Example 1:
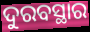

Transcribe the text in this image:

ଦୁରବସ୍ଥାର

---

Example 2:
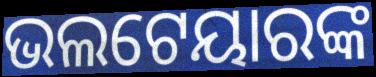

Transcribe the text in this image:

ଭଲଟେୟାରଙ୍କ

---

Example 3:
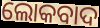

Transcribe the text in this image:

ଲୋକବାଦ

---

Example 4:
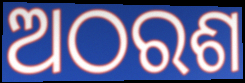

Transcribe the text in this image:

ଅଠରଶ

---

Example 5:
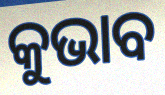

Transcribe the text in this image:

କୁଭାବ